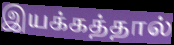
இயக்கத்தால்